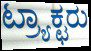
ಟ್ರ್ಯಾಕ್ಟರು